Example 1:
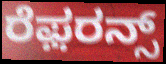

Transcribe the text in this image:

ರೆಫ಼ರನ್ಸ್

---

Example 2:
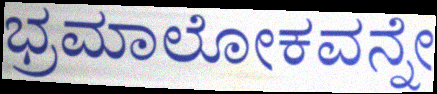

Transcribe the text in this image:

ಭ್ರಮಾಲೋಕವನ್ನೇ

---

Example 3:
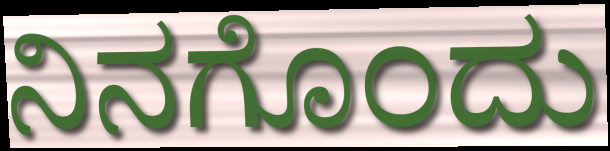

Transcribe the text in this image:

ನಿನಗೊಂದು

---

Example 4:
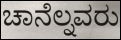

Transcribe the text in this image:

ಚಾನೆಲ್ನವರು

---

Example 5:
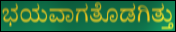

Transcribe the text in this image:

ಭಯವಾಗತೊಡಗಿತ್ತು